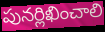
పునర్లిఖించాలి